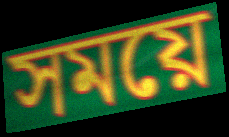
সময়ে